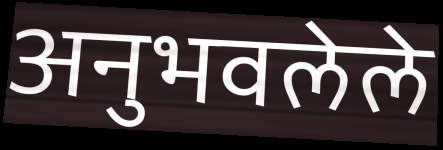
अनुभवलेले